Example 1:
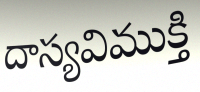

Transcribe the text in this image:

దాస్యవిముక్తి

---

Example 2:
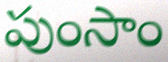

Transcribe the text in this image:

పుంసాం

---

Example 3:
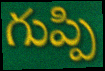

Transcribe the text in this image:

గుప్పి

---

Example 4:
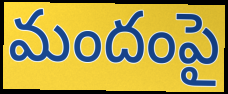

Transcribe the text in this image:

మందంపై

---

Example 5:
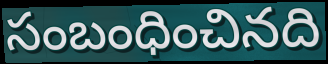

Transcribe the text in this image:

సంబంధించినది